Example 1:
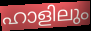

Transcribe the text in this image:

ഹാളിലും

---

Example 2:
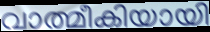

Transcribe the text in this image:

വാത്മീകിയായി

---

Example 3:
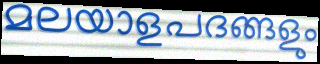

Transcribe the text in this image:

മലയാളപദങ്ങളും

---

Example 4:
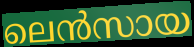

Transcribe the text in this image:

ലെൻസായ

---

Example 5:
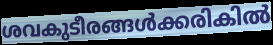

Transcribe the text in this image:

ശവകുടീരങ്ങൾക്കരികിൽ